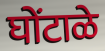
घोंटाळे